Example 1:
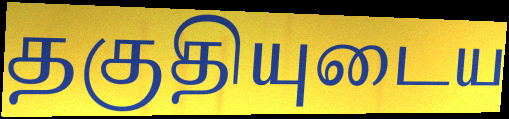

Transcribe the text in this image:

தகுதியுடைய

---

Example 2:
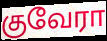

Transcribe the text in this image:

குவேரா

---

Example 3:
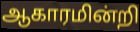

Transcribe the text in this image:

ஆகாரமின்றி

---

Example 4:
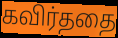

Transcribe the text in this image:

கவிர்ததை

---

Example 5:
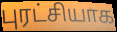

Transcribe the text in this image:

புரட்சியாக